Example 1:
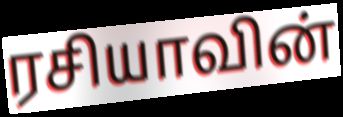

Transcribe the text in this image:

ரசியாவின்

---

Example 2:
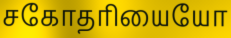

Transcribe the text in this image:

சகோதரியையோ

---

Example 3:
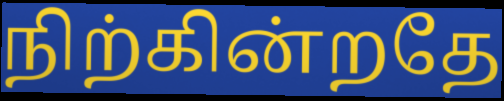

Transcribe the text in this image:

நிற்கின்றதே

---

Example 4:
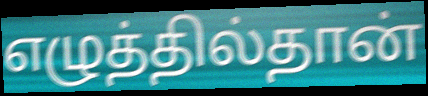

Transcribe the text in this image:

எழுத்தில்தான்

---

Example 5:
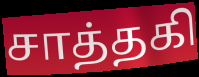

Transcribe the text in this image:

சாத்தகி